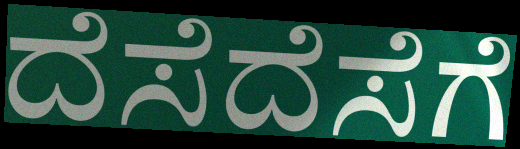
ದೆಸೆದೆಸೆಗೆ